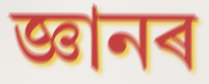
জ্ঞানৰ